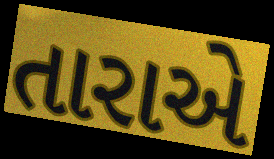
તારાએ